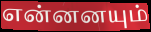
என்னனயும்